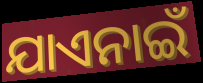
ଯାଏନାଇଁ